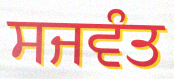
ਸਜਵੰਤ